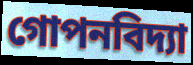
গোপনবিদ্যা